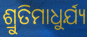
ଶ୍ରୁତିମାଧୁର୍ଯ୍ୟ